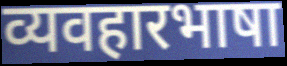
व्यवहारभाषा